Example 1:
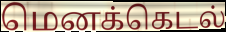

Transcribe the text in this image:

மெனக்கெடல்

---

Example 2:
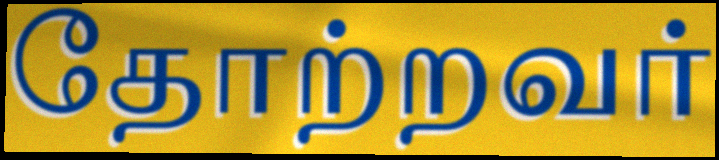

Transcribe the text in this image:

தோற்றவர்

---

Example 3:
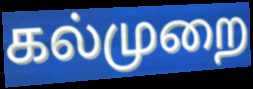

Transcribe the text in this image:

கல்முறை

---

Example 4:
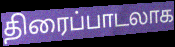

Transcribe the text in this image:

திரைப்பாடலாக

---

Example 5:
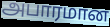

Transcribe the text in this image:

அபாரமான